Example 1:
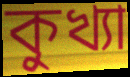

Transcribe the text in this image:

কুখ্যা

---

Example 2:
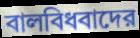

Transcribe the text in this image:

বালবিধবাদের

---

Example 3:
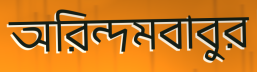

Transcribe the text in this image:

অরিন্দমবাবুর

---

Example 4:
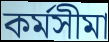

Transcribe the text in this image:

কর্মসীমা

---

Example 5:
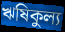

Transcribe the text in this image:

ঋষিকুল্য